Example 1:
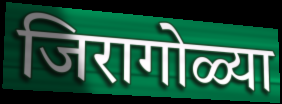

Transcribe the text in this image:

जिरागोळ्या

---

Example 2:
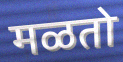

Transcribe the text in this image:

मळतो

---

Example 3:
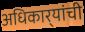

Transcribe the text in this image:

अधिकार्‍यांची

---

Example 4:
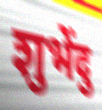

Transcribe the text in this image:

शुभेंदु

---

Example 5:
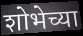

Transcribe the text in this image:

शोभेच्या